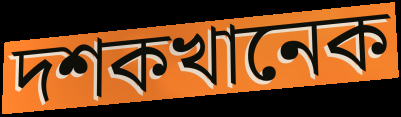
দশকখানেক